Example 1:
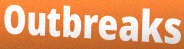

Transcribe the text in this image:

Outbreaks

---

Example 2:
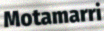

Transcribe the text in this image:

Motamarri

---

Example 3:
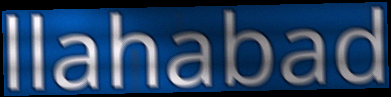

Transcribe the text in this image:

llahabad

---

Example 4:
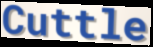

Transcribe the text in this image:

Cuttle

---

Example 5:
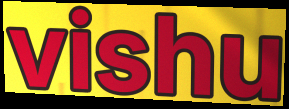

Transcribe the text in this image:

vishu